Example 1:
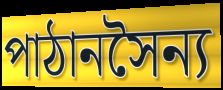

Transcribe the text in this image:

পাঠানসৈন্য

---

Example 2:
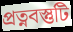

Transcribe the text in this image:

প্রত্নবস্তুটি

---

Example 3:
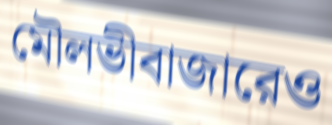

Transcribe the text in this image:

মৌলভীবাজারেও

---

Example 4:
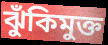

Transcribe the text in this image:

ঝুঁকিমুক্ত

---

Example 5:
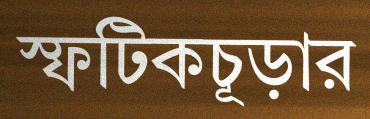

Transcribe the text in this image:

স্ফটিকচূড়ার